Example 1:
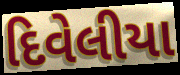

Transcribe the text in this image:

દિવેલીયા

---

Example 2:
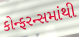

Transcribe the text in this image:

કોન્ફરન્સમાંથી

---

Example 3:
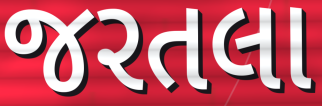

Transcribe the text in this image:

જરતલા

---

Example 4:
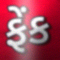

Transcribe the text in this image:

ફેંક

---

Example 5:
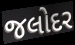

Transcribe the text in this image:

જલોદર